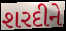
શરદીને